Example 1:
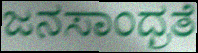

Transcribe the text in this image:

ಜನಸಾಂಧ್ರತೆ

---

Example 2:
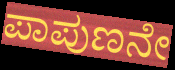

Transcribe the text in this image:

ಪಾಪುಣನೇ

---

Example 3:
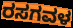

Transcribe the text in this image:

ರಸಗವಳ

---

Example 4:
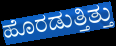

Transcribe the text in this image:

ಹೊರಡುತ್ತಿತ್ತು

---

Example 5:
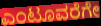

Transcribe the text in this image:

ಎಂಟೂವರೆಗೇ